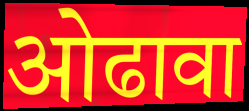
ओढावा